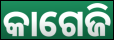
କାଗେଜି